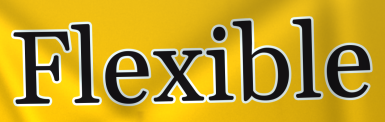
Flexible